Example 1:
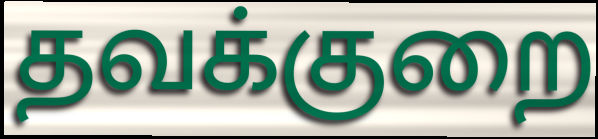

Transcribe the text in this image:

தவக்குறை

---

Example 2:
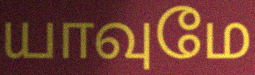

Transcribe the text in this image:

யாவுமே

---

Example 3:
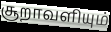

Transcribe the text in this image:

சூறாவளியும்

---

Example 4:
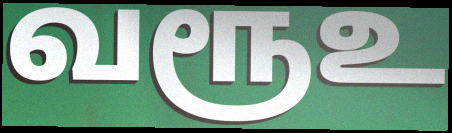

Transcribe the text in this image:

வரூஉ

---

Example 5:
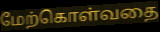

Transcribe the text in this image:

மேற்கொள்வதை